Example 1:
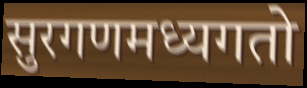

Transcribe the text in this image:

सुरगणमध्यगतो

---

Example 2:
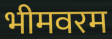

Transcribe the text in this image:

भीमवरम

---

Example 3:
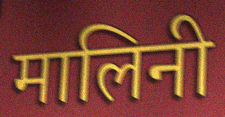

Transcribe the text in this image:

मालिनी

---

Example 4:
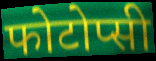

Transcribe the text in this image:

फोटोप्सी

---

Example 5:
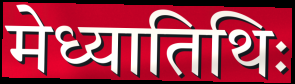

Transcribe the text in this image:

मेध्यातिथिः